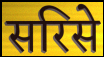
सरिसे